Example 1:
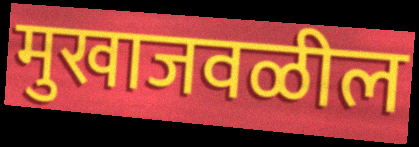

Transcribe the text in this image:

मुखाजवळील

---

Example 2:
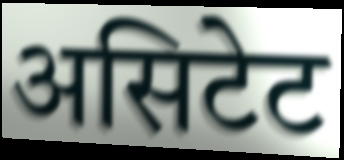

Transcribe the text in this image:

असिटेट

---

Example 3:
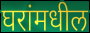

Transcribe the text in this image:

घरांमधील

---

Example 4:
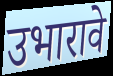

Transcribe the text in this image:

उभारावे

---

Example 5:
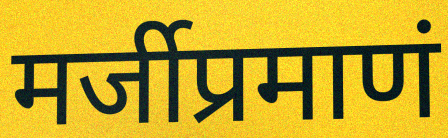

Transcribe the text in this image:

मर्जीप्रमाणं